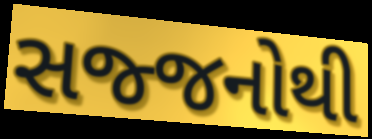
સજ્જનોથી